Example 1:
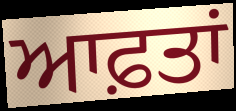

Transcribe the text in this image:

ਆਫ਼ਤਾਂ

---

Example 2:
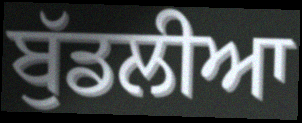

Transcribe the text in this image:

ਬੁੱਡਲੀਆ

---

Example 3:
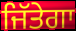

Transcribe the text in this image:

ਜਿੱਤੇਗਾ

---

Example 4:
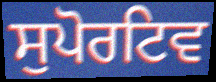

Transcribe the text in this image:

ਸੁਪੋਰਟਿਵ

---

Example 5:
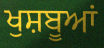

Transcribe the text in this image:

ਖੁਸ਼ਬੂਆਂ